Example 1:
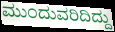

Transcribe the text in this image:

ಮುಂದುವರಿದಿದ್ದು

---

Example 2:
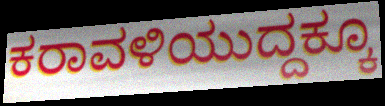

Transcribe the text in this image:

ಕರಾವಳಿಯುದ್ದಕ್ಕೂ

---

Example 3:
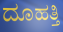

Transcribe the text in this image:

ದೂಹತ್ತಿ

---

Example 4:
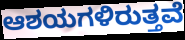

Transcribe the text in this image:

ಆಶಯಗಳಿರುತ್ತವೆ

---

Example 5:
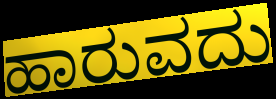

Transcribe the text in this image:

ಹಾರುವದು